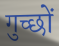
गुच्छों